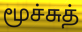
மூச்சுத்